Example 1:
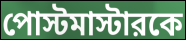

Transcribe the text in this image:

পোস্টমাস্টারকে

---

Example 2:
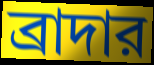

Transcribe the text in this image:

ব্রাদার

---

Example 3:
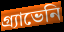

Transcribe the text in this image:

গ্র্যাভেনি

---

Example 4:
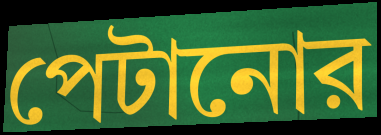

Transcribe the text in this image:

পেটানোর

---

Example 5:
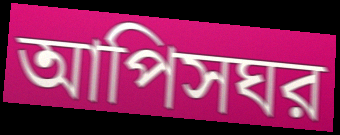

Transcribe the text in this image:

আপিসঘর